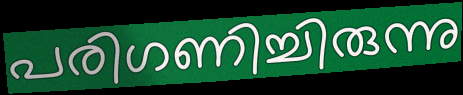
പരിഗണിച്ചിരുന്നു